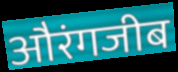
औरंगजीब